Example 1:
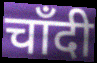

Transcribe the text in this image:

चाँदी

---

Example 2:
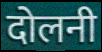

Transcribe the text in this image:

दोलनी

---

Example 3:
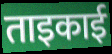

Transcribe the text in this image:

ताइकाई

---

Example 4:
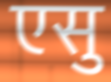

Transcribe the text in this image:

एसु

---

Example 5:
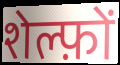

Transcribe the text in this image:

शेल्फ़ों